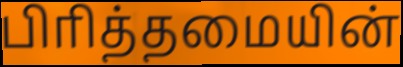
பிரித்தமையின்